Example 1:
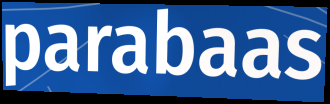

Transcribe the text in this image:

parabaas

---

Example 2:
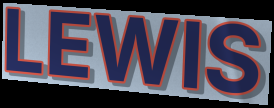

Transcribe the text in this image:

LEWIS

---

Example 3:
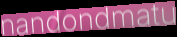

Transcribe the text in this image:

nandondmatu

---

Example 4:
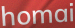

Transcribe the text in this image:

homai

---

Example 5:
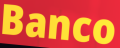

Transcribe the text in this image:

Banco